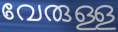
വേരുള്ള